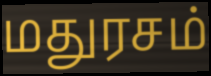
மதுரசம்